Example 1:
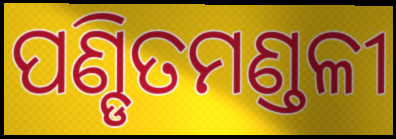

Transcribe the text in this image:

ପଣ୍ଡିତମଣ୍ଡଳୀ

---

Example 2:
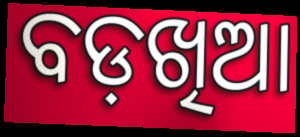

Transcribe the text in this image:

ବଡ଼ଖିଆ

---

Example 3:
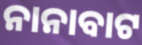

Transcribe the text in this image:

ନାନାବାଟ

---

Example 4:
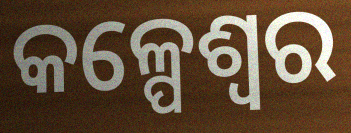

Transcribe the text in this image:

କଳ୍ପେଶ୍ୱର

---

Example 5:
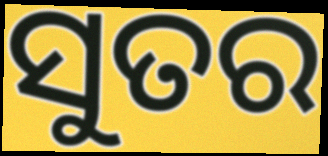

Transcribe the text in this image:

ସୁତର